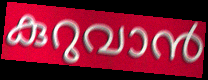
കുറുവാൻ